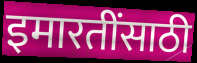
इमारतींसाठी